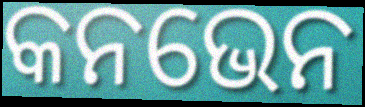
କନଭେନ